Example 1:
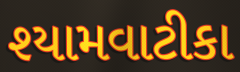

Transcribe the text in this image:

શ્યામવાટીકા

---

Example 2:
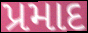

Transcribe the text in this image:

પ્રમાદ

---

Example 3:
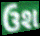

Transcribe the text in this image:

ઉશ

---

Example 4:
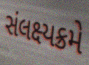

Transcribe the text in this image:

સંલક્ષ્યક્રમે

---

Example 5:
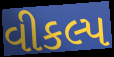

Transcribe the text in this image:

વીકલ્પ